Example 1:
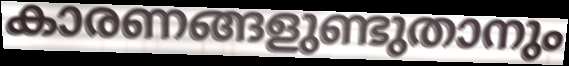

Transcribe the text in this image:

കാരണങ്ങളുണ്ടുതാനും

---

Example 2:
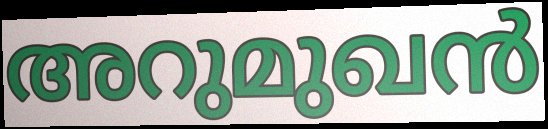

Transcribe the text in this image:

അറുമുഖൻ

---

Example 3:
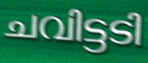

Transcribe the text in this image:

ചവിട്ടടി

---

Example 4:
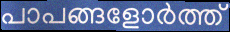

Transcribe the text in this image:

പാപങ്ങളോർത്ത്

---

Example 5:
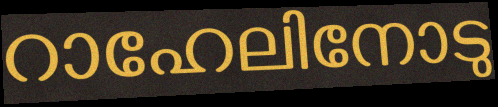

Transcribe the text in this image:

റാഹേലിനോടു